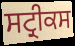
ਸਟ੍ਰੀਕਸ